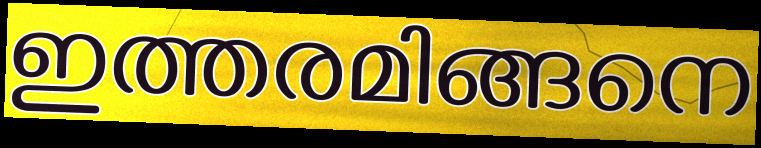
ഇത്തരമിങ്ങനെ